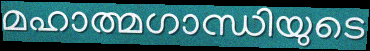
മഹാത്മഗാന്ധിയുടെ